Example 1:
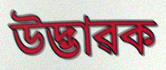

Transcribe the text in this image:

উদ্ভাৱক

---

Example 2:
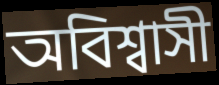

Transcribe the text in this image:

অবিশ্বাসী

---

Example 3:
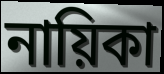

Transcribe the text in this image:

নায়িকা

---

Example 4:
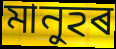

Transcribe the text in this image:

মানুহৰ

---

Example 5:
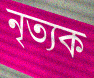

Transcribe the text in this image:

নৃত্যক